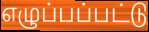
எழுப்பப்பட்டு